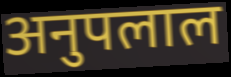
अनुपलाल